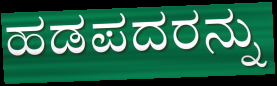
ಹಡಪದರನ್ನು